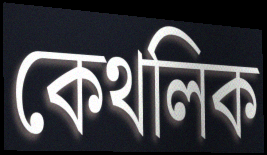
কেথলিক